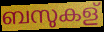
ബസുകള്